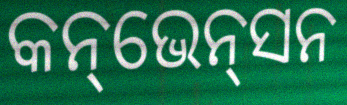
କନ୍‌ଭେନ୍‌ସନ